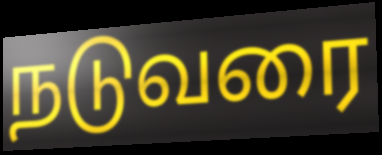
நடுவரை